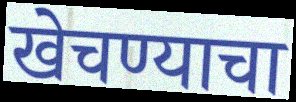
खेचण्याचा